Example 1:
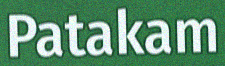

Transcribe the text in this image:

Patakam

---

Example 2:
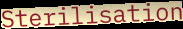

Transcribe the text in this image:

Sterilisation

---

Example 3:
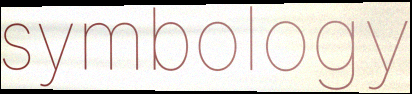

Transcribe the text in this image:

symbology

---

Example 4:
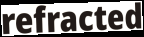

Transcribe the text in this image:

refracted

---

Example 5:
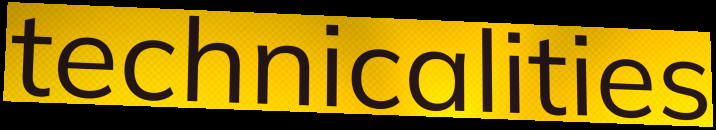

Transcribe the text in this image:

technicalities